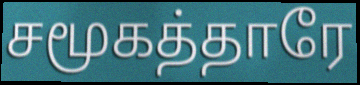
சமூகத்தாரே